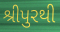
શ્રીપુરથી